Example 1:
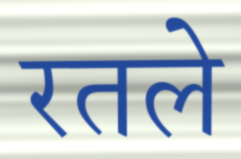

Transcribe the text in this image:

रतले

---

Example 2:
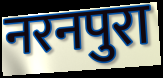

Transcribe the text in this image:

नरनपुरा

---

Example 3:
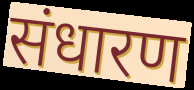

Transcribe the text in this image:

संधारण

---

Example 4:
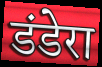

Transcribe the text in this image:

डंडेरा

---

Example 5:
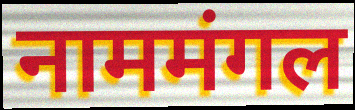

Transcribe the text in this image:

नाममंगल